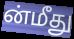
ன்மீது